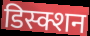
डिस्क्शन